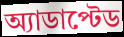
অ্যাডাপ্টেড